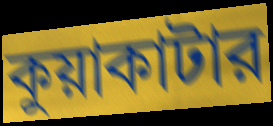
কুয়াকাটার